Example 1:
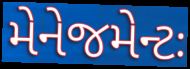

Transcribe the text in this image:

મેનેજમેન્ટઃ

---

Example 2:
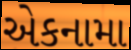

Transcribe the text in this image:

એકનામા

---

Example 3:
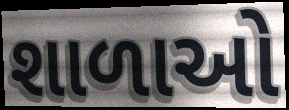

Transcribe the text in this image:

શાળાઓ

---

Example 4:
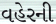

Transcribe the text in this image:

વહેરની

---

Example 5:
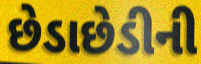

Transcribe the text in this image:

છેડાછેડીની